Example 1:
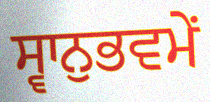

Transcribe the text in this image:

ਸ੍ਵਾਨੁਭਵਮੇਂ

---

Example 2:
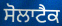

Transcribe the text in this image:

ਸੋਲਾਟੈਕ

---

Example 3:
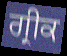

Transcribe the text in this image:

ਗ੍ਰੀਕ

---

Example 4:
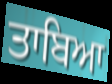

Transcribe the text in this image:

ਤਾਬਿਆ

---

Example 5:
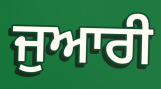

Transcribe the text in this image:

ਜੁਆਰੀ